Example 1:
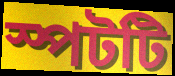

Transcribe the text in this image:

স্পটটি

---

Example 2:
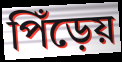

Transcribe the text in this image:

পিঁড়েয়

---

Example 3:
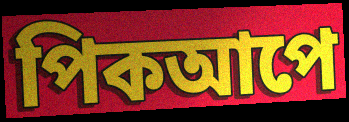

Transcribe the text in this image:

পিকআপে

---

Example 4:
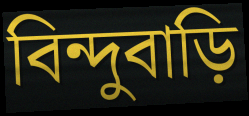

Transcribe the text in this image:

বিন্দুবাড়ি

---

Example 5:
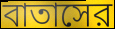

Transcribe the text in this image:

বাতাসের